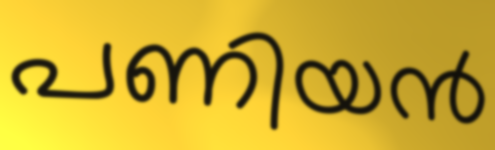
പണിയൻ